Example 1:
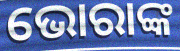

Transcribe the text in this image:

ଭୋରାଙ୍କ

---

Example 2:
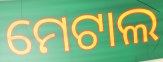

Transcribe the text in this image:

ମେଟାଲ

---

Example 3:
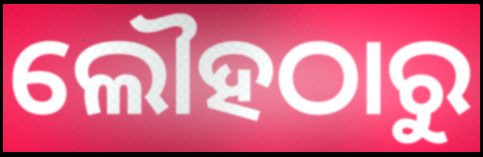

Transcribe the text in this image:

ଲୌହଠାରୁ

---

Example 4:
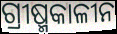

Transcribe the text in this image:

ଗ୍ରୀଷ୍ମକାଳୀନ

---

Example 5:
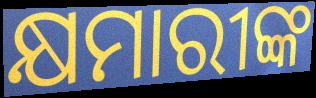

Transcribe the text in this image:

କ୍ଷମାରୀଙ୍କ